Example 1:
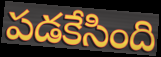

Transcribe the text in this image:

పడకేసింది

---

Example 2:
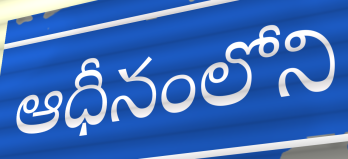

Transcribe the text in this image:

ఆధీనంలోని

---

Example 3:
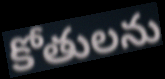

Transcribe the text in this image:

కోతులను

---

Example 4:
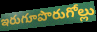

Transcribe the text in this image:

ఇరుగూపొరుగోల్లు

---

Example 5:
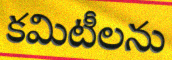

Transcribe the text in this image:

కమిటీలను